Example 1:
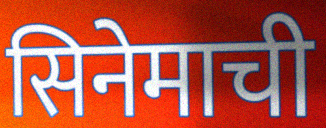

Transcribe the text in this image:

सिनेमाची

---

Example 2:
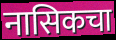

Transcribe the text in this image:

नासिकचा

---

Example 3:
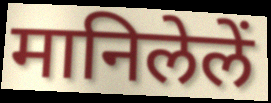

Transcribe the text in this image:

मानिलेलें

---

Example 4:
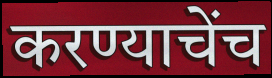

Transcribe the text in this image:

करण्याचेंच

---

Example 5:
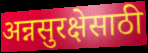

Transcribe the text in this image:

अन्नसुरक्षेसाठी